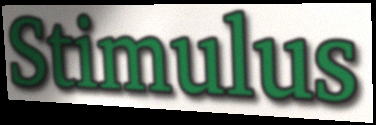
Stimulus